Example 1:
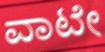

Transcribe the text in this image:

ವಾಟೇ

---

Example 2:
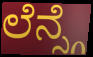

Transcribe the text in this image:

ಲೆನ್ಸ್ಗೆ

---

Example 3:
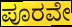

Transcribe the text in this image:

ಪೂರವೇ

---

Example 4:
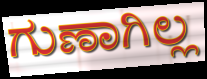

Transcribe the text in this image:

ಗುಣಾಗಿಲ್ಲ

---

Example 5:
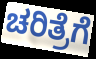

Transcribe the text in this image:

ಚರಿತ್ರೆಗೆ